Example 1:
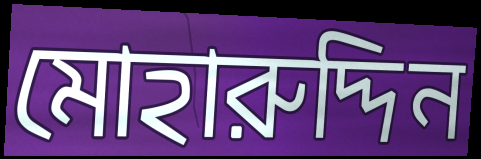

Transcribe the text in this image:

মোহারুদ্দিন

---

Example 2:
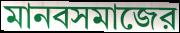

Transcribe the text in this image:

মানবসমাজের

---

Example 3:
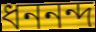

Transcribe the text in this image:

ধননন্দ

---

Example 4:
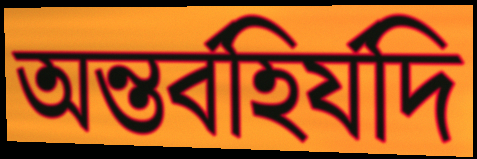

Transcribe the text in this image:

অন্তর্বহির্যদি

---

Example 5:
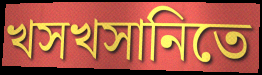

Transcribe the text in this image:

খসখসানিতে